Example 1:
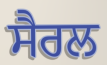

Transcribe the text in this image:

ਸੈਰਲ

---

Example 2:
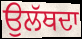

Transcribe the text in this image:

ਉਲੱਥਦਾ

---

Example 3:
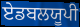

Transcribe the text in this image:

ਏਡਬਲਯੂਪੀ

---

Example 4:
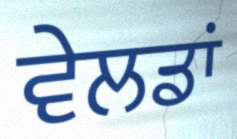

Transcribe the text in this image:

ਵੇਲਡਾਂ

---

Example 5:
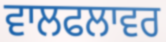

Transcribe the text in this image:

ਵਾਲਫਲਾਵਰ